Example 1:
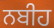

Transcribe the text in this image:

ਨਬੀਹ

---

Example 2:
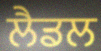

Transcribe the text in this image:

ਲੈਡਲ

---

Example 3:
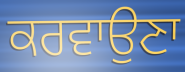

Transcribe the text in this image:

ਕਰਵਾਉਣਾ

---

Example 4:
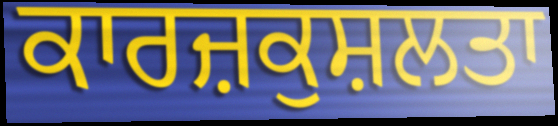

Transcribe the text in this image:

ਕਾਰਜ਼ਕੁਸ਼ਲਤਾ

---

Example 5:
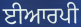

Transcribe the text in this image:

ਈਆਰਪੀ